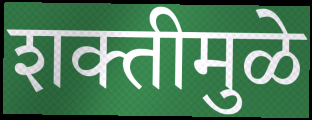
शक्तीमुळे